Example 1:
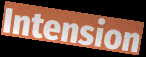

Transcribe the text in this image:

Intension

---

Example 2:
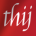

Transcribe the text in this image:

thij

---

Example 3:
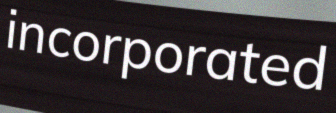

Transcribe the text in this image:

incorporated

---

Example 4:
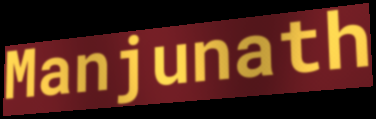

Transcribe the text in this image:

Manjunath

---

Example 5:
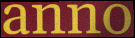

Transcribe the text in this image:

anno